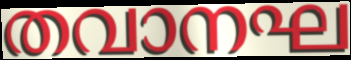
തവാനഘ